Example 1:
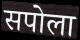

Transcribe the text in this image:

सपोला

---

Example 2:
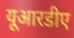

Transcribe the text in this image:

यूआरडीए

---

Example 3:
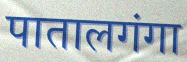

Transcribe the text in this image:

पातालगंगा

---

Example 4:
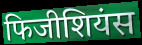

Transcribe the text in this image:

फिजीशियंस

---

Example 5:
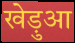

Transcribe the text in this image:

खेड़ुआ